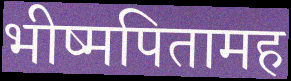
भीष्मपितामह